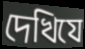
দেখিযে